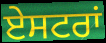
ਏਸਟਰਾਂ